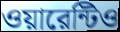
ওয়ারেন্টিও